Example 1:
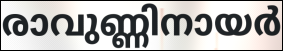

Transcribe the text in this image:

രാവുണ്ണിനായർ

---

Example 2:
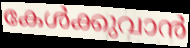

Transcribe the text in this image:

കേൾക്കുവാൻ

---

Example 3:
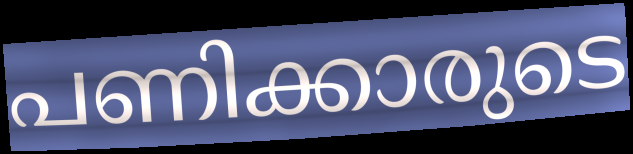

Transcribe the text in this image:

പണിക്കാരുടെ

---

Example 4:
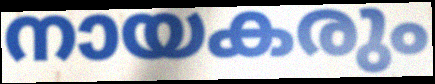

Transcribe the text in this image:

നായകരും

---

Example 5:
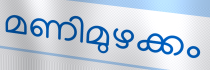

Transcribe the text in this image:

മണിമുഴക്കം